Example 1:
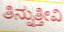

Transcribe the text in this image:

ತಿನ್ನುತ್ತೀವಿ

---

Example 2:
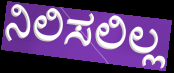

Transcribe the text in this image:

ನಿಲಿಸಲಿಲ್ಲ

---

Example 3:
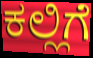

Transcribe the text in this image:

ಕಲ್ಲಿಗೆ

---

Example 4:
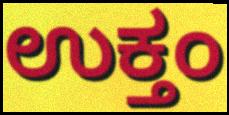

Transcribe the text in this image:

ಉಕ್ತಂ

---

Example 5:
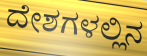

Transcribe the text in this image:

ದೇಶಗಳಲ್ಲಿನ